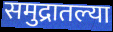
समुद्रातल्या